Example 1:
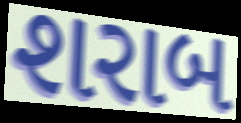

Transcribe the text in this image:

શરાબ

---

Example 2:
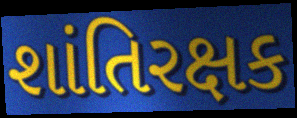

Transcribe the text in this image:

શાંતિરક્ષક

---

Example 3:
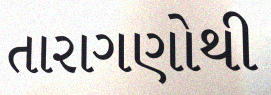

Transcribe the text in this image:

તારાગણોથી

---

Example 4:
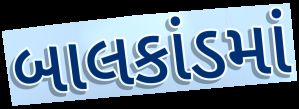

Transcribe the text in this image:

બાલકાંડમાં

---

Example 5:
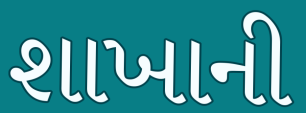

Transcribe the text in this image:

શાખાની